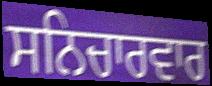
ਸਨਿਚਾਰਵਾਰ